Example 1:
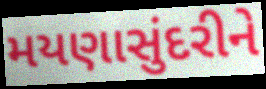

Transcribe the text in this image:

મયણાસુંદરીને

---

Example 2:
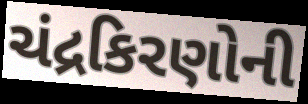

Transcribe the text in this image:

ચંદ્રકિરણોની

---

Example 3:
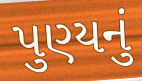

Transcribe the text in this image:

પુણ્યનું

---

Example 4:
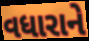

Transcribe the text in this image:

વધારાને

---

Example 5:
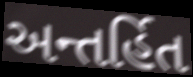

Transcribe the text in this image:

અન્તર્હિત